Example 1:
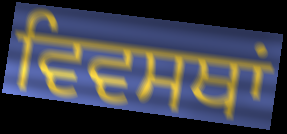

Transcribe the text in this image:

ਵਿਵਸਥਾਂ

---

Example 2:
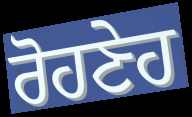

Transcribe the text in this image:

ਰੋਹਣੇਹ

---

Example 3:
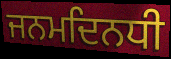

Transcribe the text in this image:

ਜਨਮਦਿਨਧੀ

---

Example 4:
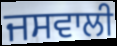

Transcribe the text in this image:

ਜਸਵਾਲੀ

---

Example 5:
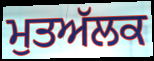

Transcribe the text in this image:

ਮੁਤਅੱਲਕ